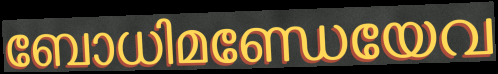
ബോധിമണ്ഡേയേവ